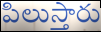
పిలుస్తారు